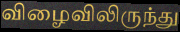
விழைவிலிருந்து